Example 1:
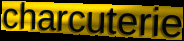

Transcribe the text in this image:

charcuterie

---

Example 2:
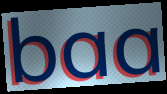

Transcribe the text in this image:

baa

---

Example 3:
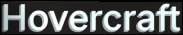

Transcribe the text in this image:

Hovercraft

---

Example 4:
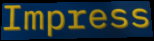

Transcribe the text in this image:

Impress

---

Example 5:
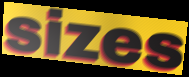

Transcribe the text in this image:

sizes